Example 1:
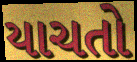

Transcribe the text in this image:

યાચતો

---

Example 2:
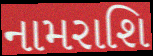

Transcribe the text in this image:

નામરાશિ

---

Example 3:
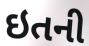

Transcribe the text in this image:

ઇતની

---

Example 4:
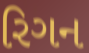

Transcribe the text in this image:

રિગન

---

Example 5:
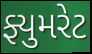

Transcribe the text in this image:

ફ્યુમરેટ